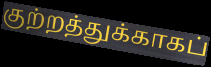
குற்றத்துக்காகப்